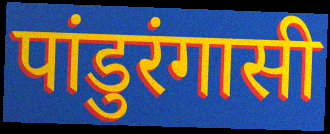
पांडुरंगासी